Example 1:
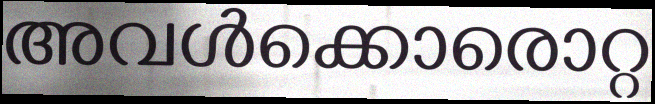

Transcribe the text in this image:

അവൾക്കൊരൊറ്റ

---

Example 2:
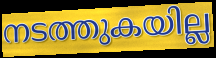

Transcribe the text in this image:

നടത്തുകയില്ല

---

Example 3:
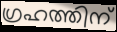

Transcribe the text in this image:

ഗ്രഹത്തിന്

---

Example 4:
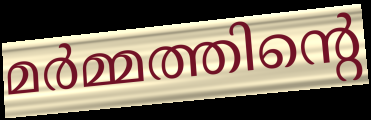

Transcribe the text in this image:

മർമ്മത്തിന്റെ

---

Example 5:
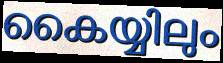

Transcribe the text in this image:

കൈയ്യിലും